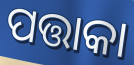
ପତ୍ତାକା